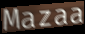
Mazaa